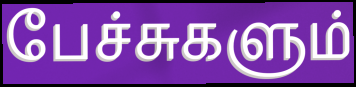
பேச்சுகளும்